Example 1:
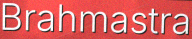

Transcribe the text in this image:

Brahmastra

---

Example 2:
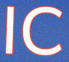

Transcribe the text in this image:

IC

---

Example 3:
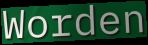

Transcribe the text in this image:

Worden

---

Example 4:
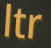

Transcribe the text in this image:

ltr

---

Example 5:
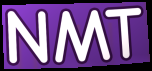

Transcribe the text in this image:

NMT